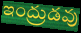
ఇంద్రుడవు